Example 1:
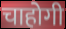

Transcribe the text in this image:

चाहोगी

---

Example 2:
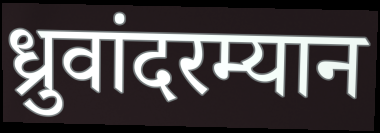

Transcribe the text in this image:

ध्रुवांदरम्यान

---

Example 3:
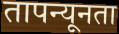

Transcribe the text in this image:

तापन्यूनता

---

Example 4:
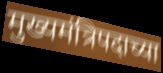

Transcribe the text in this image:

मुख्यमंत्रिपदाच्या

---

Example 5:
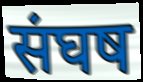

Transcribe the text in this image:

संघष